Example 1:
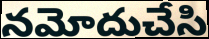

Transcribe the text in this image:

నమోదుచేసి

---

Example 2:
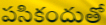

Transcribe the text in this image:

పసికందుతో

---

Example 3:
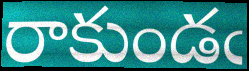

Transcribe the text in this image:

రాకుండఁ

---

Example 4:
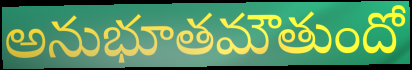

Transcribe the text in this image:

అనుభూతమౌతుందో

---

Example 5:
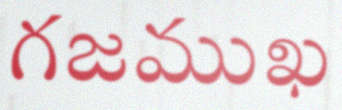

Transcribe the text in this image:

గజముఖ